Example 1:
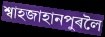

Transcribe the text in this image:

শ্বাহজাহানপুৰলৈ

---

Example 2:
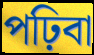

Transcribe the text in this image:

পঢ়িবা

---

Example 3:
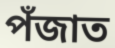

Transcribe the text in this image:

পঁজাত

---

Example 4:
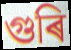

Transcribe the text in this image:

গুৰি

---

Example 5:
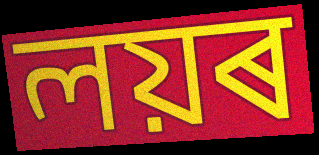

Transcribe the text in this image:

লয়ৰ